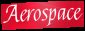
Aerospace